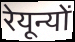
रेयून्यों